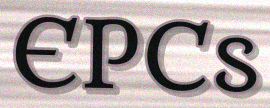
EPCs